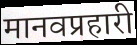
मानवप्रहारी